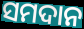
ସମଦାନ